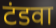
टंडवा